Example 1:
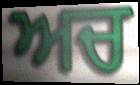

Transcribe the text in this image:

ਅਚ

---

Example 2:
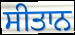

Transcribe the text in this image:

ਸੀਤਾਨ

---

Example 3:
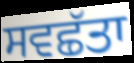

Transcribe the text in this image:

ਸਵਛੱਤਾ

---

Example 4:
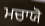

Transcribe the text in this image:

ਮਚਾਯੋ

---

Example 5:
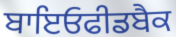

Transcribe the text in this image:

ਬਾਇਓਫੀਡਬੈਕ